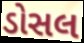
ડોસલ